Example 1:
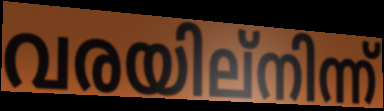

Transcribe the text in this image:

വരയില്നിന്ന്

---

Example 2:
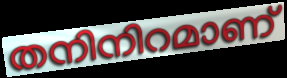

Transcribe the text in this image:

തനിനിറമാണ്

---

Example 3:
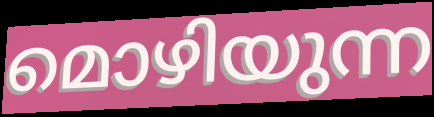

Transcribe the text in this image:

മൊഴിയുന്ന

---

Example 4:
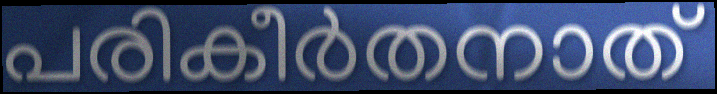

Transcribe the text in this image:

പരികീർതനാത്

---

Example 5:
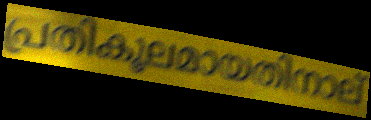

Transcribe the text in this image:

പ്രതികൂലമായതിനാല്